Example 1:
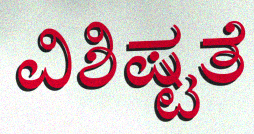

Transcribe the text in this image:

ವಿಶಿಷ್ಟತೆ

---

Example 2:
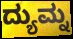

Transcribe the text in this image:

ದ್ಯುಮ್ನ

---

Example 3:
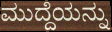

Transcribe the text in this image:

ಮುದ್ದೆಯನ್ನು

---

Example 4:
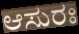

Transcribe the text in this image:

ಆಸುರಃ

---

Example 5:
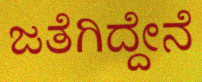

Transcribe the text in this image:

ಜತೆಗಿದ್ದೇನೆ